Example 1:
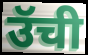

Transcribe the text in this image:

उॅची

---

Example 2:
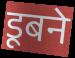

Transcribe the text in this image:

डूबने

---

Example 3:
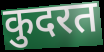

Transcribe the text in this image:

कुदरत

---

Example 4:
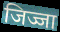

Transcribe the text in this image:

जिज्जा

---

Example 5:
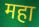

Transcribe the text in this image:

महा